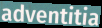
adventitia